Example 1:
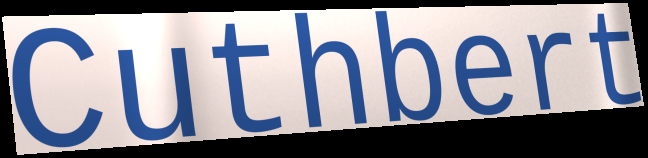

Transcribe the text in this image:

Cuthbert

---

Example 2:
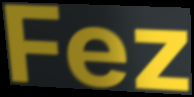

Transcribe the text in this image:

Fez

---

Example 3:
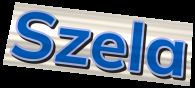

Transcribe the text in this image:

Szela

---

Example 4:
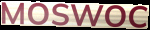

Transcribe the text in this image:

MOSWOC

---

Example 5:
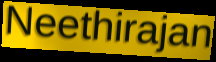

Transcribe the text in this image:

Neethirajan